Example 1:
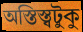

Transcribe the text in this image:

অস্তিস্ত্বটুকু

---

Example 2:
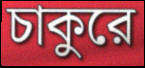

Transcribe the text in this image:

চাকুরে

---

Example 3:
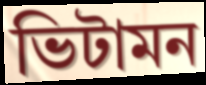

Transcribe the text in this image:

ভিটামন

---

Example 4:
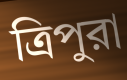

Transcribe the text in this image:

ত্রিপুরা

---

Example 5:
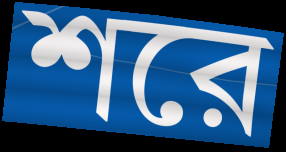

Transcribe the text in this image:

শরে